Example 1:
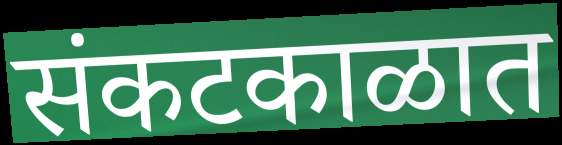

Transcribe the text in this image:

संकटकाळात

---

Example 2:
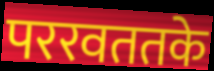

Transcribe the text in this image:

पररवततके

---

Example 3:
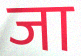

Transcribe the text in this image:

जा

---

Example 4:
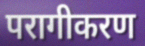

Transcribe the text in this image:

परागीकरण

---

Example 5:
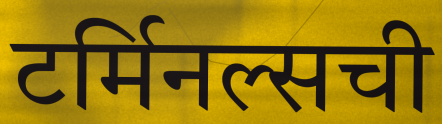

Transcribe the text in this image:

टर्मिनल्सची